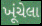
ખૂંચેલા